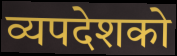
व्यपदेशको